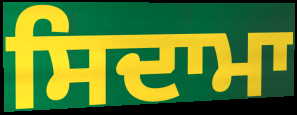
ਸਿਦਾਮਾ